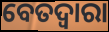
ବେତଦ୍ୱାରା